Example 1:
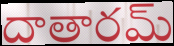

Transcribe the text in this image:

దాతారమ్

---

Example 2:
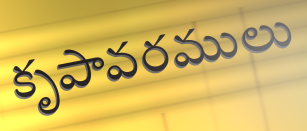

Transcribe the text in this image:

కృపావరములు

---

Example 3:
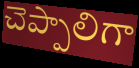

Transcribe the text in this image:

చెప్పాలిగా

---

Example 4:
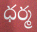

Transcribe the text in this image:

ధర్మ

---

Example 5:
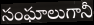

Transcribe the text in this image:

సంఘాలుగానీ